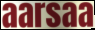
aarsaa